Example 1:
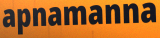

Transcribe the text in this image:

apnamanna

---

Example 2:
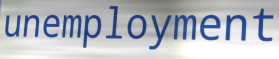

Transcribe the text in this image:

unemployment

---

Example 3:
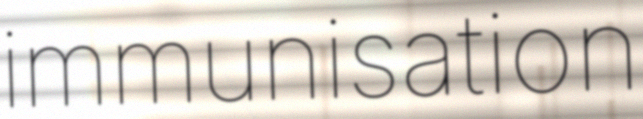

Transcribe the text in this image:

immunisation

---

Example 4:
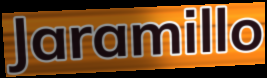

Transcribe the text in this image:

Jaramillo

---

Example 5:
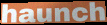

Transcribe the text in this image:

haunch